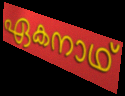
ഏകനാഥ്